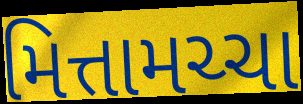
મિત્તામચ્ચા